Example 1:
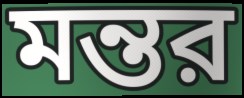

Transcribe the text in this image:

মন্তর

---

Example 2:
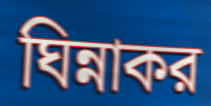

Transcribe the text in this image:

ঘিন্নাকর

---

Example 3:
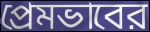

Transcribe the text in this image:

প্রেমভাবের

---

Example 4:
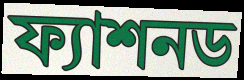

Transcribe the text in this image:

ফ্যাশনড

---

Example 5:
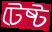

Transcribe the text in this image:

টেষ্ট